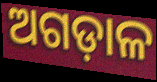
ଅଗଡ଼ାଳ